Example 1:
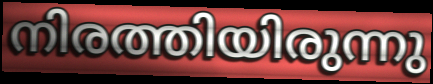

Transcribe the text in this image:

നിരത്തിയിരുന്നു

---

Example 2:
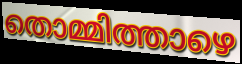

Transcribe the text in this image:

തൊമ്മിത്താഴെ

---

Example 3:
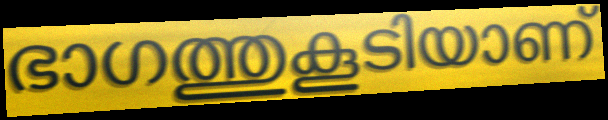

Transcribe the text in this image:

ഭാഗത്തുകൂടിയാണ്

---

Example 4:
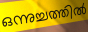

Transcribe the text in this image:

ഒന്നുച്ചത്തിൽ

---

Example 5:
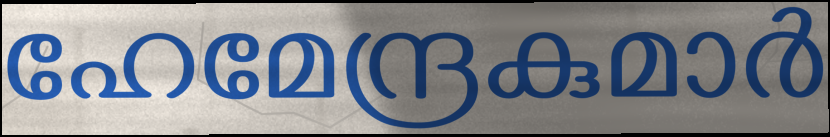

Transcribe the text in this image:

ഹേമേന്ദ്രകുമാർ